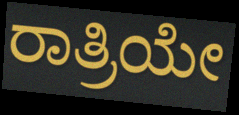
ರಾತ್ರಿಯೇ